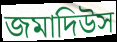
জমাদিউস